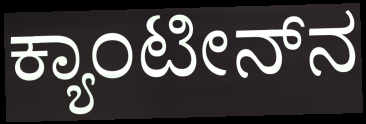
ಕ್ಯಾಂಟೀನ್‌ನ